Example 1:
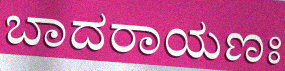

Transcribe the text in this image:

ಬಾದರಾಯಣಃ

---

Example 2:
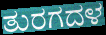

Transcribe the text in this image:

ತುರಗದಳ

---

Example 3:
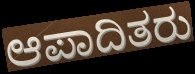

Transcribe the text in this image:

ಆಪಾದಿತರು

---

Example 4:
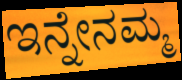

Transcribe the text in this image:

ಇನ್ನೇನಮ್ಮ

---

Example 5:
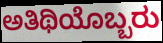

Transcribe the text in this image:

ಅತಿಥಿಯೊಬ್ಬರು